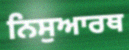
ਨਿਸੁਆਰਥ